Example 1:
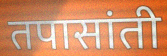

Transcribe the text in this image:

तपासांती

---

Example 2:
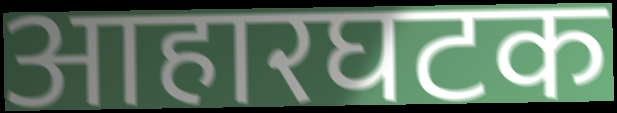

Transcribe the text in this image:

आहारघटक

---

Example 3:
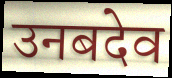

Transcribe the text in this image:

उनबदेव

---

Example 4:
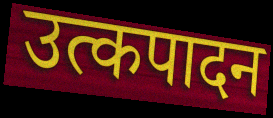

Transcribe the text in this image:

उत्कपादन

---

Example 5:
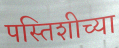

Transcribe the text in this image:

पस्तिशीच्या